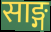
साङ्ग